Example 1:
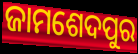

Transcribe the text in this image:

ଜାମଶେଦପୁର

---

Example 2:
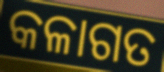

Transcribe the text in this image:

କଳାଗତ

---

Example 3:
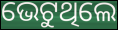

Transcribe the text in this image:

ଭେଟୁଥିଲେ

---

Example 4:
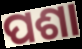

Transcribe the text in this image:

ପଶା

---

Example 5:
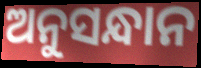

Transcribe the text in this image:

ଅନୁସନ୍ଧାନ